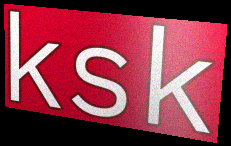
ksk